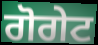
ਗੋਗੇਟ